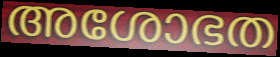
അശോഭത